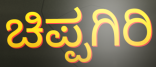
ಚಿಪ್ಪಗಿರಿ